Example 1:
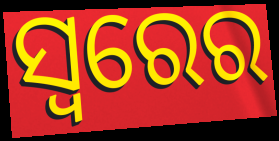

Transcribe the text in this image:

ସ୍ୱରେର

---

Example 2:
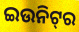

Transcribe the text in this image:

ଇଉନିଟ୍‍ର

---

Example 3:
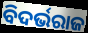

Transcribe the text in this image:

ବିଦର୍ଭରାଜ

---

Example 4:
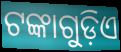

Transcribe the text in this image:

ଟଙ୍କାଗୁଡ଼ିଏ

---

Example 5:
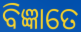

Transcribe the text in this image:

ବିଜ୍ଞାତେ